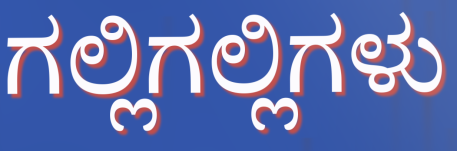
ಗಲ್ಲಿಗಲ್ಲಿಗಳು